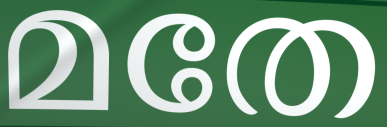
മതേ